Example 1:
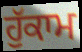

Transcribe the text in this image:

ਹੁੱਕਾਮ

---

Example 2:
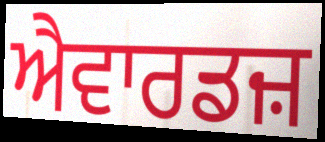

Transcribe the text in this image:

ਐਵਾਰਡਜ਼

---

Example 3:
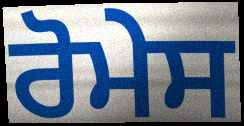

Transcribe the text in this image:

ਰੋਮੇਸ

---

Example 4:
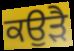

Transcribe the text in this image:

ਕਉੜੈ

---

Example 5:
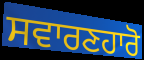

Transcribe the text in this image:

ਸਵਾਰਣਹਾਰੋ